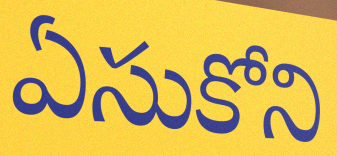
ఏసుకోని